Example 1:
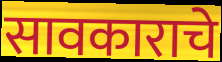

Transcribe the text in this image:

सावकाराचे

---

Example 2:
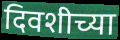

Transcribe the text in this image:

दिवशीच्या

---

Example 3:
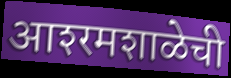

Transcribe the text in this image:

आश्रमशाळेची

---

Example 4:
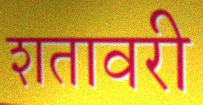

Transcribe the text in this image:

शतावरी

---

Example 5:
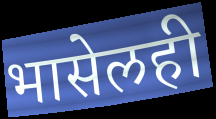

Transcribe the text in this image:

भासेलही